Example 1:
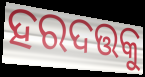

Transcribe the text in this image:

ହରଦତ୍ତକୁ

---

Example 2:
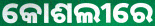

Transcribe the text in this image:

କୋଶଲୀରେ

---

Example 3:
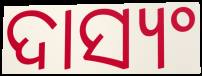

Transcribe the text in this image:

ଦାସ୍ୟଂ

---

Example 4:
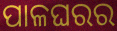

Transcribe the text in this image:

ପାଳଘରର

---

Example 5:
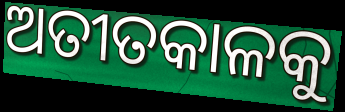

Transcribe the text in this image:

ଅତୀତକାଳକୁ